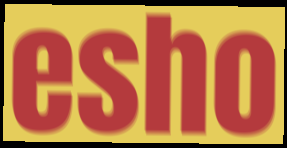
esho